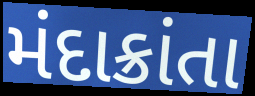
મંદાક્રાંતા